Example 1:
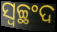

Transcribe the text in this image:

ସ୍ୱଚ୍ଛଂଦ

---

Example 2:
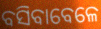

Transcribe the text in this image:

ବସିବାବେଳେ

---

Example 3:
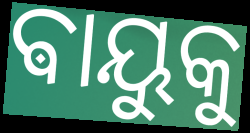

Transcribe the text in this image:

ଵାୟୁକୁ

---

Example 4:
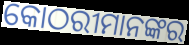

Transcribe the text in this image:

କୋଠରୀମାନଙ୍କର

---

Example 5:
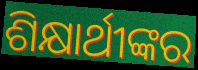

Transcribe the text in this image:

ଶିକ୍ଷାର୍ଥୀଙ୍କର